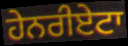
ਹੇਨਰੀਏਟਾ